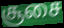
சூசை